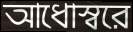
আধোস্বরে